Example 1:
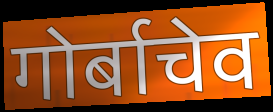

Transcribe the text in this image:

गोर्बाचेव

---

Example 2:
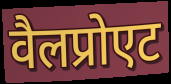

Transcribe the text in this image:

वैलप्रोएट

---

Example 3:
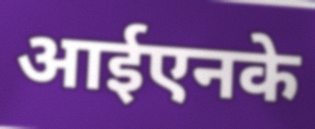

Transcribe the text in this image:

आईएनके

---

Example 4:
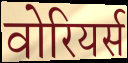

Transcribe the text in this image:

वोरियर्स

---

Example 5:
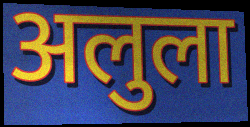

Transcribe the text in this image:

अलुला